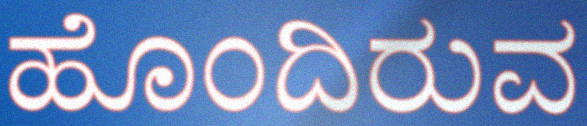
ಹೊಂದಿರುವ